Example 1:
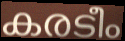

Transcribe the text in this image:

കരടീം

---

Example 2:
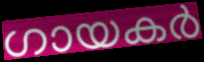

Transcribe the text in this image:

ഗായകർ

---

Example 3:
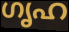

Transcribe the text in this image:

ഗൃഹ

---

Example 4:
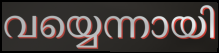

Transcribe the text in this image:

വയ്യെന്നായി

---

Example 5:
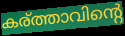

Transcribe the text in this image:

കര്ത്താവിന്റെ